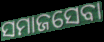
ସମାଜସେବା